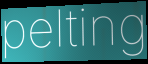
pelting